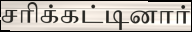
சரிக்கட்டினார்